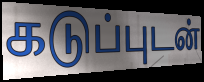
கடுப்புடன்